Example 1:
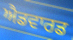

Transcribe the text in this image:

ਐਡਵਾਰਡ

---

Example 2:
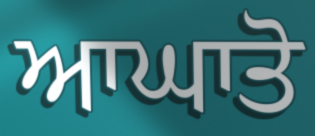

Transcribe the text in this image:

ਆਘਾਤੋ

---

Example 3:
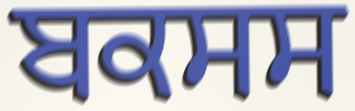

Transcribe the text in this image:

ਬਕਸਸ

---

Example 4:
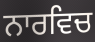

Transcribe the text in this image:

ਨਾਰਵਿਚ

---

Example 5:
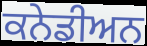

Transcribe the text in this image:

ਕਨੇਡੀਅਨ